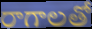
రాగాలతో